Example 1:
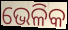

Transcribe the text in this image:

ଭେଳିକ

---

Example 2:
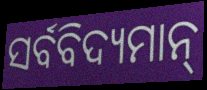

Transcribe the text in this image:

ସର୍ବବିଦ୍ୟମାନ୍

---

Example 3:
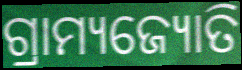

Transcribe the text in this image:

ଗ୍ରାମ୍ୟଜ୍ୟୋତି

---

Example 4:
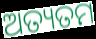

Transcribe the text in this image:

ଅତ୍ୟତମ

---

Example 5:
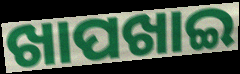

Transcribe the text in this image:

ଖାପଖାଇ